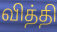
வித்தி